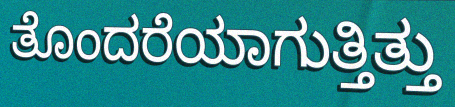
ತೊಂದರೆಯಾಗುತ್ತಿತ್ತು